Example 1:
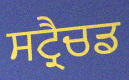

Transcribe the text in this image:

ਸਟ੍ਰੈਚਡ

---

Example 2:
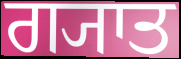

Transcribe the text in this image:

ਗ੍ਯਾਤ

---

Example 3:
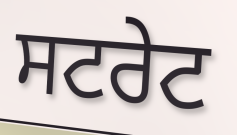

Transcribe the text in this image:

ਸਟਰੇਟ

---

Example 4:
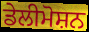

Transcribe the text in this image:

ਡੇਲੀਮੋਸ਼ਨ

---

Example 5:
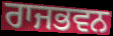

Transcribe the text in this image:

ਰਾਜਭਵਨ